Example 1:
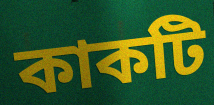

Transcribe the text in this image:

কাকটি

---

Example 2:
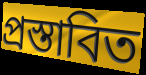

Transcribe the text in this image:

প্রস্তাবিত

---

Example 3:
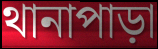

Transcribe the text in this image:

থানাপাড়া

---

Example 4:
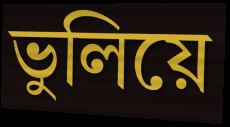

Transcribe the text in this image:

ভুলিয়ে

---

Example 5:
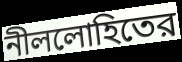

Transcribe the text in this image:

নীললোহিতের